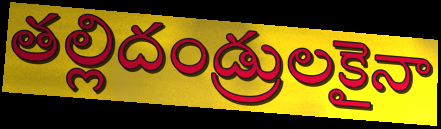
తల్లిదండ్రులకైనా